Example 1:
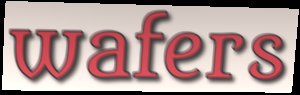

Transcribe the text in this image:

wafers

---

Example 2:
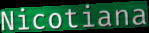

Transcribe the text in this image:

Nicotiana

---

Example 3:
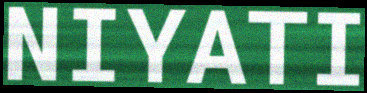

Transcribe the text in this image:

NIYATI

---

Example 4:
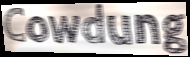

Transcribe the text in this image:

Cowdung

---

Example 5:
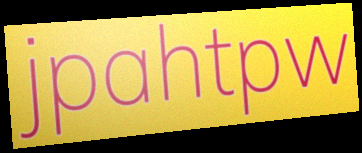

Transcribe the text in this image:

jpahtpw